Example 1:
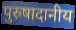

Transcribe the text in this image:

पुरुषादानीय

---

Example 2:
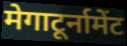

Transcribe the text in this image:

मेगाटूर्नामेंट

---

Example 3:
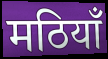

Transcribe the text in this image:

मठियाँ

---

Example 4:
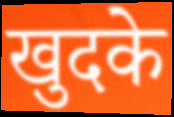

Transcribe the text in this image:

खुदके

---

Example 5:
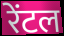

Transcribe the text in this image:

रेंटल